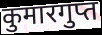
कुमारगुप्त